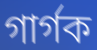
গাৰ্গক